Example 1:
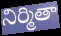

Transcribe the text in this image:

నిర్మితా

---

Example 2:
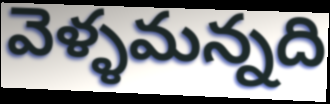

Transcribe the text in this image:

వెళ్ళమన్నది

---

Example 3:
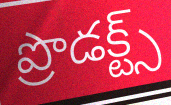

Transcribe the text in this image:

ప్రొడక్ట్స్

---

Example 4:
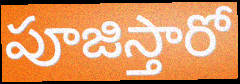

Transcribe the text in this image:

పూజిస్తారో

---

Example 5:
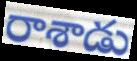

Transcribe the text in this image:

రాశాడు